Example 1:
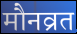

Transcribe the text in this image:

मौनव्रत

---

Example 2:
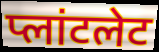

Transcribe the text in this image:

प्लांटलेट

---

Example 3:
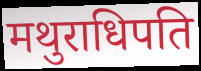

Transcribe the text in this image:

मथुराधिपति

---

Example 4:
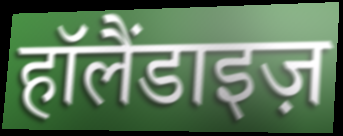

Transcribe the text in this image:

हॉलैंडाइज़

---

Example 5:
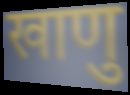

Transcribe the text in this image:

खाणु